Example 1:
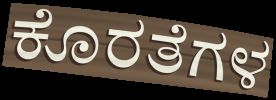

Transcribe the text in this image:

ಕೊರತೆಗಳ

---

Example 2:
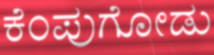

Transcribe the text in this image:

ಕೆಂಪುಗೋಡು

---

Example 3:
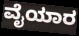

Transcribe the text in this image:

ವೈಯಾರ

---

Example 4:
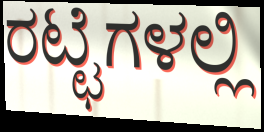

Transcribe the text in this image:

ರಟ್ಟೆಗಳಲ್ಲಿ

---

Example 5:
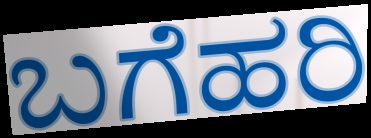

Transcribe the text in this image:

ಬಗೆಹರಿ